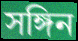
সঙ্গিন